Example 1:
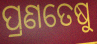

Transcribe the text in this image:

ପ୍ରଣତେଷୁ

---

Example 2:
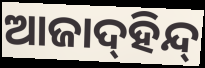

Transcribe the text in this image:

ଆଜାଦ୍‍ହିନ୍ଦ୍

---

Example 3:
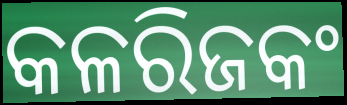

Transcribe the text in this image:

କଳରିଜକଂ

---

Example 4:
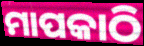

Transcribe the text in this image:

ମାପକାଠି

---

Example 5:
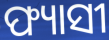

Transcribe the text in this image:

ଫ୍ୟାସୀ